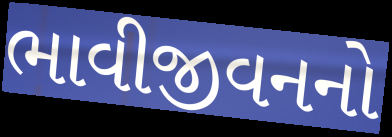
ભાવીજીવનનો